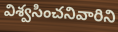
విశ్వసించనివారిని